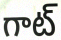
గాట్